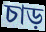
চাড়